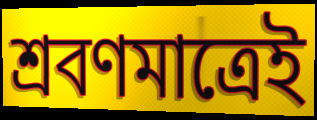
শ্রবণমাত্রেই